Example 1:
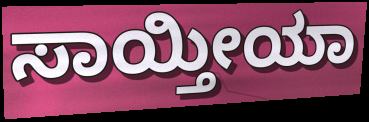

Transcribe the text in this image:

ಸಾಯ್ತೀಯಾ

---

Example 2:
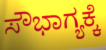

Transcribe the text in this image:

ಸೌಭಾಗ್ಯಕ್ಕೆ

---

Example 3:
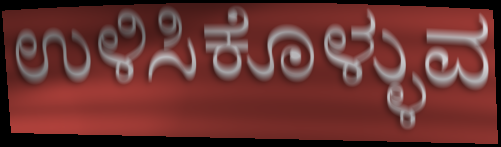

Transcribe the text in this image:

ಉಳಿಸಿಕೊಳ್ಳುವ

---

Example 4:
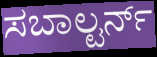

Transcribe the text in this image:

ಸಬಾಲ್ಟರ್ನ್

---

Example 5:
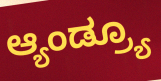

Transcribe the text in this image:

ಆ್ಯಂಡ್ರ್ಯೂ